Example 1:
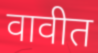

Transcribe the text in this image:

वावीत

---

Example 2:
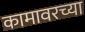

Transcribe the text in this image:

कामावरच्या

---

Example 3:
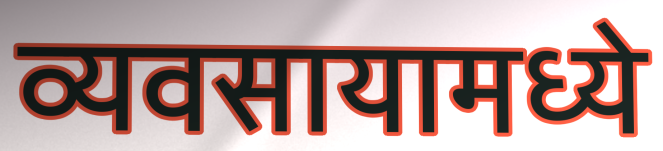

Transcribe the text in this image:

व्यवसायामध्ये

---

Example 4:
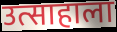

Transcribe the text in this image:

उत्साहाला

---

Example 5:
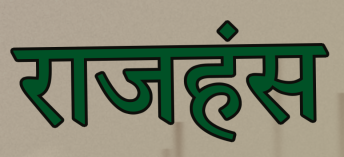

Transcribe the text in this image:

राजहंस